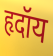
हृदॉय